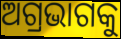
ଅଗ୍ରଭାଗକୁ